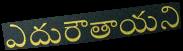
ఎదురౌతాయని